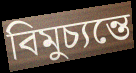
বিমুচ্যন্তে